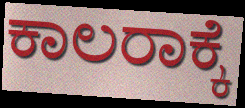
ಕಾಲರಾಕ್ಕೆ